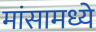
मांसामध्ये